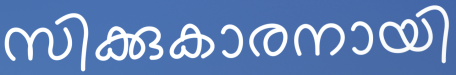
സിക്കുകാരനായി